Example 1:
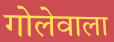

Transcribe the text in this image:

गोलेवाला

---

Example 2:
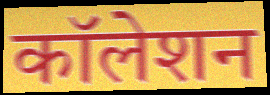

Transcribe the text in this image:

कॉलेशन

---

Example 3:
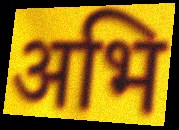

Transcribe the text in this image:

अभि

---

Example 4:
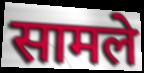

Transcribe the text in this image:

सामले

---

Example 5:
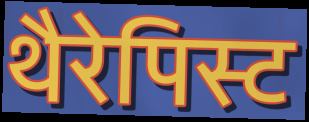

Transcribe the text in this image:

थैरेपिस्ट